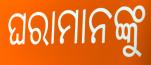
ଘରାମାନଙ୍କୁ